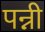
पन्नी